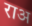
राअ